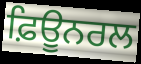
ਫ਼ਿਊਨਰਲ